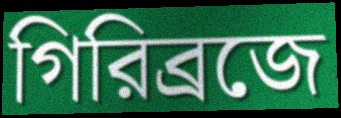
গিরিব্রজে